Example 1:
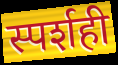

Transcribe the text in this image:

स्पर्शही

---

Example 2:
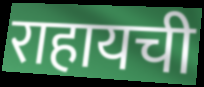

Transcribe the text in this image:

राहायची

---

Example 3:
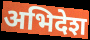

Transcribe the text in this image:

अभिदेश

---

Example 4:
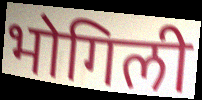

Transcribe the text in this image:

भोगिली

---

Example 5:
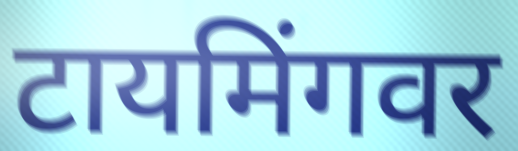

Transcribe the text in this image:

टायमिंगवर